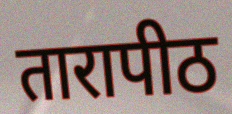
तारापीठ